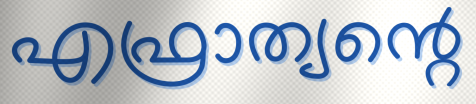
എഫ്രാത്യന്റെ